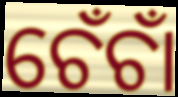
ଚେଁଚାଁ